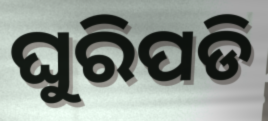
ଘୁରିପଡି